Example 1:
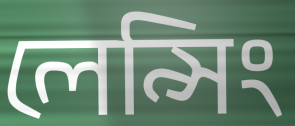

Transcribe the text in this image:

লেন্সিং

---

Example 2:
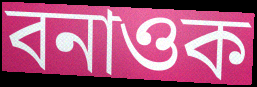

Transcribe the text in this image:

বনাওক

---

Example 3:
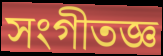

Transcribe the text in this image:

সংগীতজ্ঞ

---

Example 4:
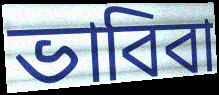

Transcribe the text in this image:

ভাবিবা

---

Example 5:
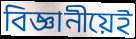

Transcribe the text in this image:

বিজ্ঞানীয়েই